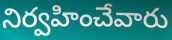
నిర్వహించేవారు